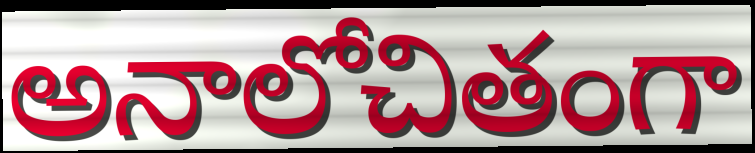
అనాలోచితంగా